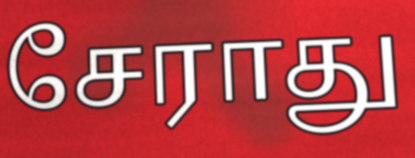
சேராது